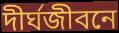
দীর্ঘজীবনে